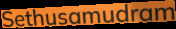
Sethusamudram